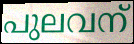
പുലവന്